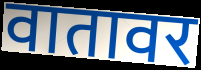
वातावर